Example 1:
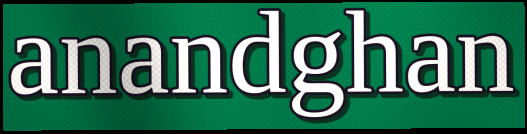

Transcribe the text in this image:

anandghan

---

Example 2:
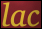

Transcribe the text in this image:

lac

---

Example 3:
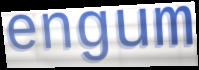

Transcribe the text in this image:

engum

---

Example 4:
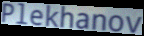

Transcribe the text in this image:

Plekhanov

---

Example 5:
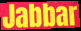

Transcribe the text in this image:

Jabbar